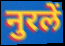
नुरलें